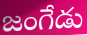
జంగేడు